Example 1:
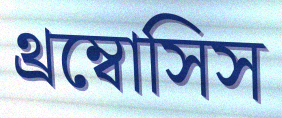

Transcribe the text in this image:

থ্রম্বোসিস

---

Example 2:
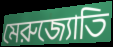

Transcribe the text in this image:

মেরুজ্যোতি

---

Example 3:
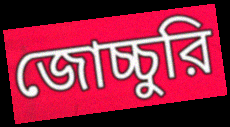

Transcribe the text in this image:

জোচ্চুরি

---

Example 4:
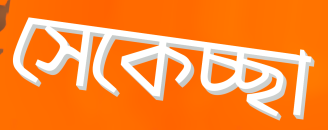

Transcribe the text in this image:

সেকেচ্ছা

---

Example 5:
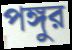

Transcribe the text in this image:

পঙ্গুর